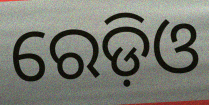
ରେଡ଼ିଓ